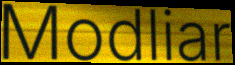
Modliar